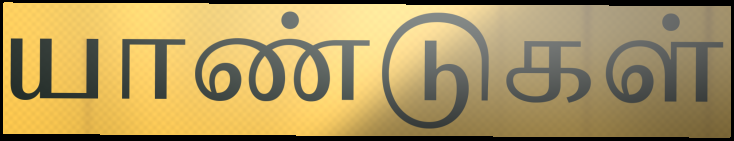
யாண்டுகள்